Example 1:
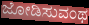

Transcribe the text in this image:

ಜೋಡಿಸುವಂಥ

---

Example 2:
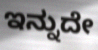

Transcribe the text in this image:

ಇನ್ನುದೇ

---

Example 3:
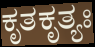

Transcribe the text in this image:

ಕೃತಕೃತ್ಯಃ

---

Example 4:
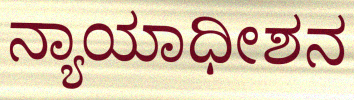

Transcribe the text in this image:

ನ್ಯಾಯಾಧೀಶನ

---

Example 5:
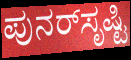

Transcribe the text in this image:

ಪುನರ್‌ಸೃಷ್ಟಿ